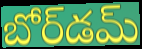
బోర్‌డమ్